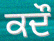
ਕਦੌ